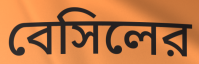
বেসিলের